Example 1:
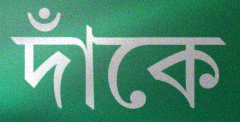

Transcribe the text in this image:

দাঁকে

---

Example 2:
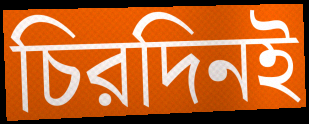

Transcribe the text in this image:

চিরদিনই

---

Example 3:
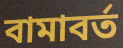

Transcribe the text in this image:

বামাবর্ত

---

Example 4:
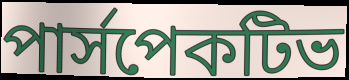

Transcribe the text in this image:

পার্সপেকটিভ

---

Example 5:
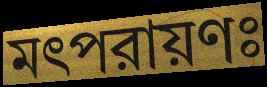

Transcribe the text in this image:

মৎপরায়ণঃ